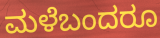
ಮಳೆಬಂದರೂ